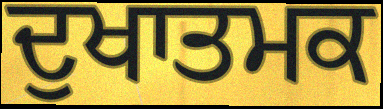
ਦੁਖਾਤਮਕ